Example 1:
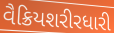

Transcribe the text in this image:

વૈક્રિયશરીરધારી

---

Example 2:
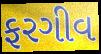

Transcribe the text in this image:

ફરગીવ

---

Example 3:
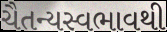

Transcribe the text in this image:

ચૈતન્યસ્વભાવથી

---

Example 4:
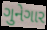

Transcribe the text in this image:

ગુનેગાર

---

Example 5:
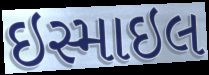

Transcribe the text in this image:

ઇસ્માઇલ